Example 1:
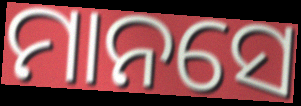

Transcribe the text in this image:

ମାନସେ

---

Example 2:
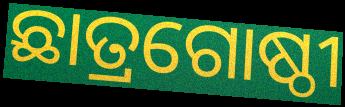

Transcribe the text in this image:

ଛାତ୍ରଗୋଷ୍ଠୀ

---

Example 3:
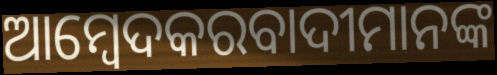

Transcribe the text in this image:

ଆମ୍ବେଦକରବାଦୀମାନଙ୍କ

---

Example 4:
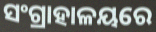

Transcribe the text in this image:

ସଂଗ୍ରାହାଳୟରେ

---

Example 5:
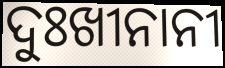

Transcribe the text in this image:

ଦୁଃଖୀନାନୀ